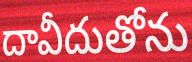
దావీదుతోను